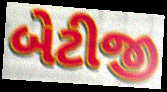
બેટીજી